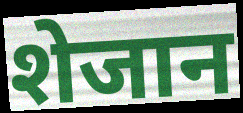
शेजान